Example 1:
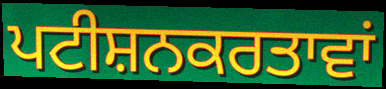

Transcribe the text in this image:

ਪਟੀਸ਼ਨਕਰਤਾਵਾਂ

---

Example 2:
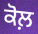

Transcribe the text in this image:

ਕੋਲ਼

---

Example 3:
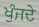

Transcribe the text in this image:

ਖੁੰਜਦੇ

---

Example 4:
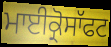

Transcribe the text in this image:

ਮਾਈਕ੍ਰੋਸਾੱਫਟ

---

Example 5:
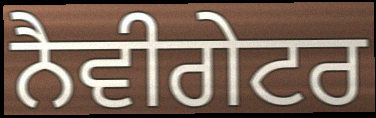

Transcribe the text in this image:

ਨੈਵੀਗੇਟਰ